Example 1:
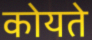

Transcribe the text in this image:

कोयते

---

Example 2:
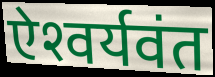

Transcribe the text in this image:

ऐश्वर्यवंत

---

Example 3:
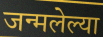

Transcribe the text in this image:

जन्मलेल्या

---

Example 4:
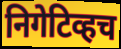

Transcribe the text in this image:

निगेटिव्हच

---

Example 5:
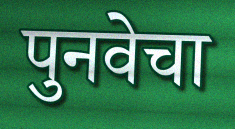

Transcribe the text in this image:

पुनवेचा